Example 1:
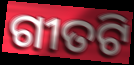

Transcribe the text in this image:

ଗୀତଟି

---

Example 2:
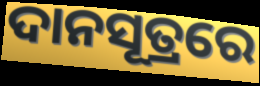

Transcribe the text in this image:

ଦାନସୂତ୍ରରେ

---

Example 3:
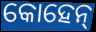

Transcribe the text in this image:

କୋହେନ୍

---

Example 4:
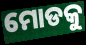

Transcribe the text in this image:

ମୋଡକୁ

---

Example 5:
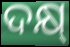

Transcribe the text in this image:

ଦକ୍ଷ୍